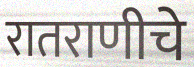
रातराणीचे